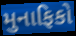
મુનાફિકો